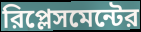
রিপ্লেসমেন্টের